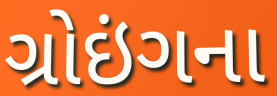
ગ્રોઇંગના